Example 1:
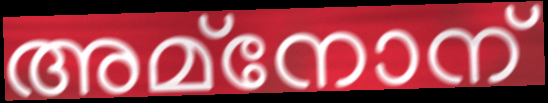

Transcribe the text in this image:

അമ്നോന്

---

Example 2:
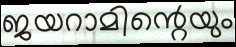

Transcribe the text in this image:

ജയറാമിന്റെയും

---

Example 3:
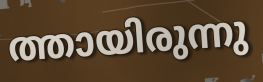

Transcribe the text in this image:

ത്തായിരുന്നു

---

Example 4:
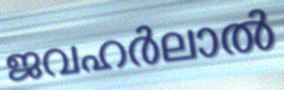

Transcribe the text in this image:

ജവഹർലാൽ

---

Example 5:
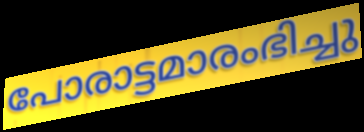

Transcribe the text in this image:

പോരാട്ടമാരംഭിച്ചു